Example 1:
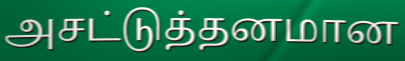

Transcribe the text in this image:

அசட்டுத்தனமான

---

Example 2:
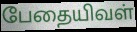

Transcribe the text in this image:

பேதையிவள்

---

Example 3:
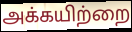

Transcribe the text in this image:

அக்கயிற்றை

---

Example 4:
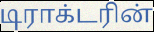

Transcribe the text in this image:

டிராக்டரின்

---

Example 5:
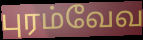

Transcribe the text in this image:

புரம்வேவ